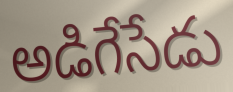
అడిగేసేడు